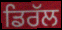
ਡਿਰੱਲ